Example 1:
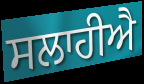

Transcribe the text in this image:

ਸਲਾਹੀਐ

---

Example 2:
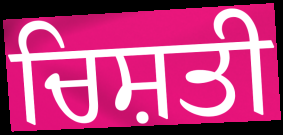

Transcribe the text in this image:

ਚਿਸ਼ਤੀ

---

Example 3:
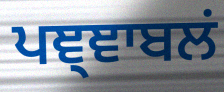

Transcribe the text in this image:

ਪਞ੍ਞਾਬਲਂ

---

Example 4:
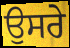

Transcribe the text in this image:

ਉਸਰੇ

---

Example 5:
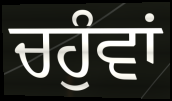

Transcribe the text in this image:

ਚਹੁੰਵਾਂ